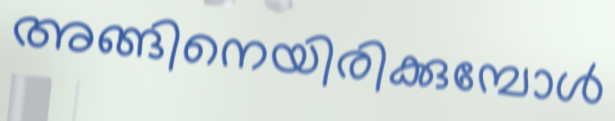
അങ്ങിനെയിരിക്കുമ്പോൾ